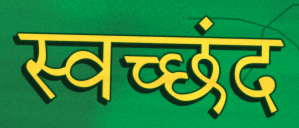
स्वच्छंद